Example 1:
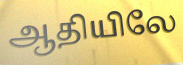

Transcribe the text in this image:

ஆதியிலே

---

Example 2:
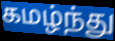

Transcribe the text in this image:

கமழ்ந்து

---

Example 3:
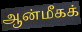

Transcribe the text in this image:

ஆன்மீகக்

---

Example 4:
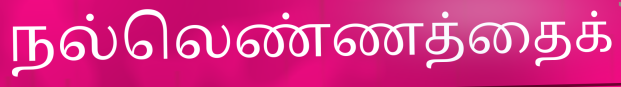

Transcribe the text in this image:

நல்லெண்ணத்தைக்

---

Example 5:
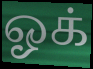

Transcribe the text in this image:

ஓக்